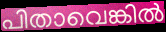
പിതാവെങ്കിൽ